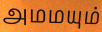
அமமயும்